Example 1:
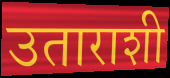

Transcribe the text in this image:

उताराशी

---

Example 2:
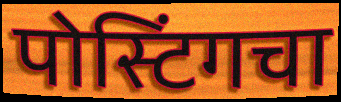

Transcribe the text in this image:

पोस्टिंगचा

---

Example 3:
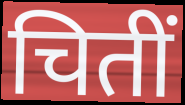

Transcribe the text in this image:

चितीं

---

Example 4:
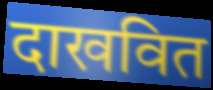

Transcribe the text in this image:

दाखवित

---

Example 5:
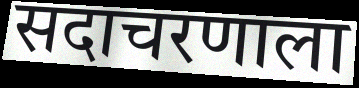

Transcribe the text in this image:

सदाचरणाला